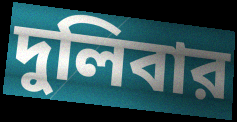
দুলিবার